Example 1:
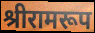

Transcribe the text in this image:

श्रीरामरूप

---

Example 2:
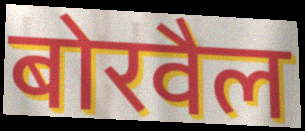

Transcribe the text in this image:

बोरवैल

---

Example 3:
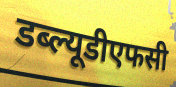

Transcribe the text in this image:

डब्ल्यूडीएफसी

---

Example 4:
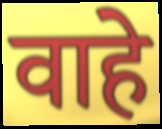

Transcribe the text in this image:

वाहे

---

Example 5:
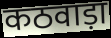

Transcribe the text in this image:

कठवाड़ा